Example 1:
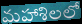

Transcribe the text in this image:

మహాశిలలో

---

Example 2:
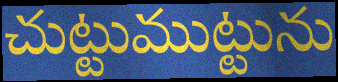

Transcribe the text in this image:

చుట్టుముట్టును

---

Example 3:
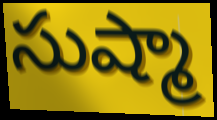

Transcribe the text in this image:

సుష్మా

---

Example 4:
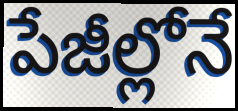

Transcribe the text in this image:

పేజీల్లోనే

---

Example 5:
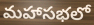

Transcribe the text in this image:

మహాసభలో